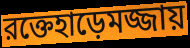
রক্তেহাড়েমজ্জায়